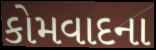
કોમવાદના